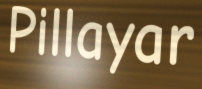
Pillayar